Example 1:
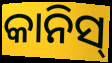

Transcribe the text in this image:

କାନିସ୍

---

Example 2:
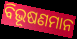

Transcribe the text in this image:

ବିଭୂଷଣମାନ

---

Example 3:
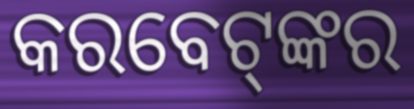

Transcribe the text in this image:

କରବେଟ୍‌ଙ୍କର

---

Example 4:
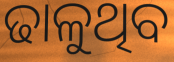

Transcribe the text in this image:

ଢାଳୁଥିବ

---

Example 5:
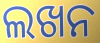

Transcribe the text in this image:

ଲଖନ